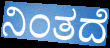
ನಿಂತದೆ